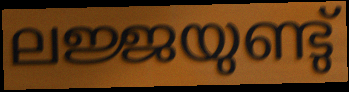
ലജ്ജയുണ്ടു്